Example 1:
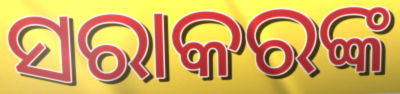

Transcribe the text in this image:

ସରାକରଙ୍କ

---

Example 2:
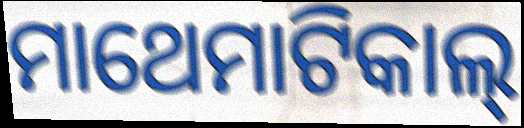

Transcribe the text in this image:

ମାଥେମାଟିକାଲ୍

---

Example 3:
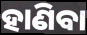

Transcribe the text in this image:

ହାଣିବା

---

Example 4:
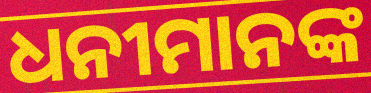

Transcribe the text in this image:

ଧନୀମାନଙ୍କ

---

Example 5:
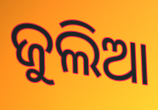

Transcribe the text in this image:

ଜୁଲିଆ